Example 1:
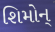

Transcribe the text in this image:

શિમોન્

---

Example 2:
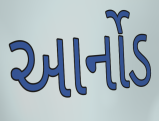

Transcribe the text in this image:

આર્નોડ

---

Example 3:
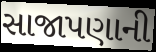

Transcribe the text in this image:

સાજાપણાની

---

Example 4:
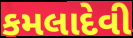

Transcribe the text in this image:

કમલાદેવી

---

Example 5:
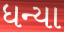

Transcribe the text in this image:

ધન્યા